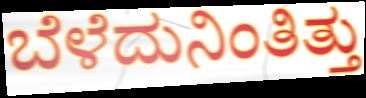
ಬೆಳೆದುನಿಂತಿತ್ತು